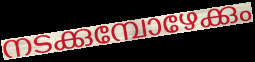
നടക്കുമ്പോഴേക്കും